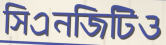
সিএনজিটিও